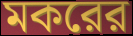
মকরের